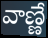
వాణ్ణే